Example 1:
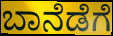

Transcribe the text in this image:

ಬಾನೆಡೆಗೆ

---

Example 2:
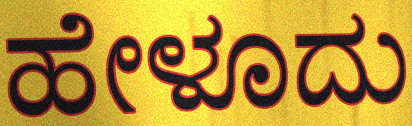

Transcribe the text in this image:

ಹೇಳೂದು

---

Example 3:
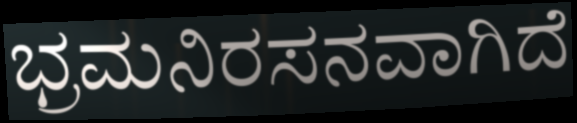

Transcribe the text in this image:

ಭ್ರಮನಿರಸನವಾಗಿದೆ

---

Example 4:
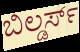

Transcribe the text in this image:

ಬಿಲ್ಡರ್ಸ್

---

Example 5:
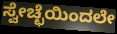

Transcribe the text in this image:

ಸ್ವೇಚ್ಛೆಯಿಂದಲೇ